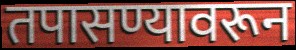
तपासण्यावरून